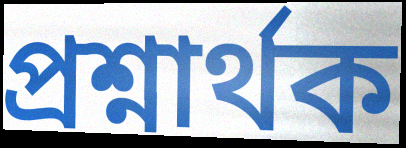
প্ৰশ্নাৰ্থক